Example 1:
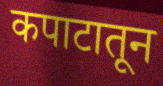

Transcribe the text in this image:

कपाटातून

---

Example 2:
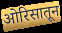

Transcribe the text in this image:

ओरिसातून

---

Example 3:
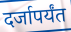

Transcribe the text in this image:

दर्जापर्यंत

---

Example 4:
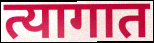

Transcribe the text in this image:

त्यागात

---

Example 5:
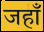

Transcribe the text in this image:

जहाँ